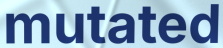
mutated